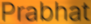
Prabhat